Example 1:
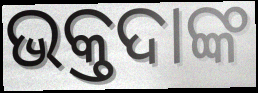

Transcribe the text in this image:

ଭକ୍ତଦାଙ୍କ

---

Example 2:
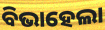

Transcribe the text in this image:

ବିଭାହେଲା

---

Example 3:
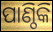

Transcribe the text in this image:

ପାଣ୍ଠିକି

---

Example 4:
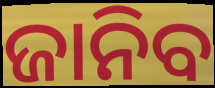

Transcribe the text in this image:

ଜାନିବ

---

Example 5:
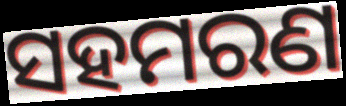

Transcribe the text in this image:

ସହମରଣ